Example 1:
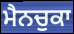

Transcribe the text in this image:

ਮੈਨਚੁਕਾ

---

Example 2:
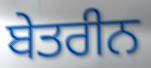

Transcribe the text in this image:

ਬੇਤਰੀਨ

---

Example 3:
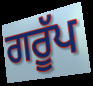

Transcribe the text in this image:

ਗਰੂੱਪ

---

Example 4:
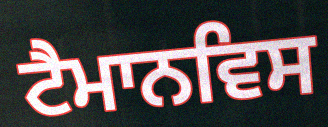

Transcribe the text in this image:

ਟੈਮਾਨਵਿਸ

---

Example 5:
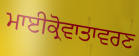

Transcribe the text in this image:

ਮਾਈਕ੍ਰੋਵਾਤਾਵਰਣ